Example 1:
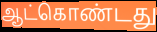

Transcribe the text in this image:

ஆட்கொண்டது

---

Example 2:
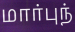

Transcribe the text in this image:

மார்புந்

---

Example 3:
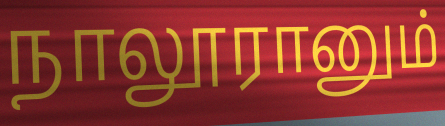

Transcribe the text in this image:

நாலூரானும்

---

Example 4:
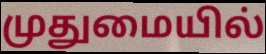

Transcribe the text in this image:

முதுமையில்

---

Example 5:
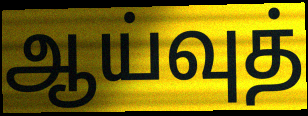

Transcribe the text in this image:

ஆய்வுத்